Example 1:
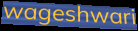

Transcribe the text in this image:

wageshwari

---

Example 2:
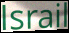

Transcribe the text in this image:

Israil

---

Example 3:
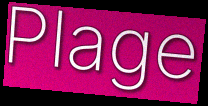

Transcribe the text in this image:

Plage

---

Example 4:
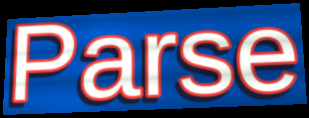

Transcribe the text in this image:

Parse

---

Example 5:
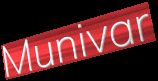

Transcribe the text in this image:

Munivar